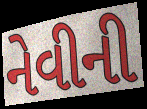
નેવીની